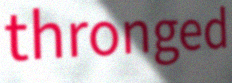
thronged